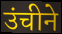
उंचीने